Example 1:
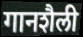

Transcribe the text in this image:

गानशैली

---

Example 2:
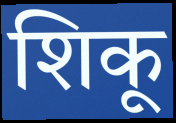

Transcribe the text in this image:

शिकू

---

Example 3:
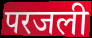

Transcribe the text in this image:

परजली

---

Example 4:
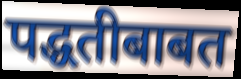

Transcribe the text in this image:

पद्धतीबाबत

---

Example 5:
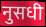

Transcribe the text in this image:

नुसधी